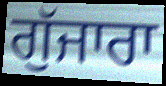
ਗੁੱਜਾਰਾ